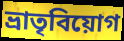
ভ্রাতৃবিয়োগ